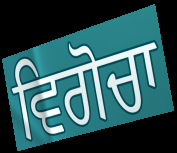
ਵਿਗੋਚਾ